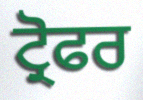
ਟ੍ਰੋਫਰ